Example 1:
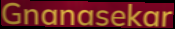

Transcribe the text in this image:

Gnanasekar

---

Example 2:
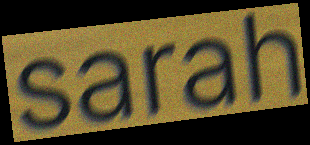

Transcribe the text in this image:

sarah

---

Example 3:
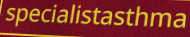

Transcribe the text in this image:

specialistasthma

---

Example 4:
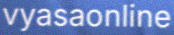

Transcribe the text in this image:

vyasaonline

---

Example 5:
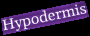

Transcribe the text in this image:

Hypodermis